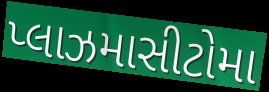
પ્લાઝમાસીટોમા